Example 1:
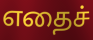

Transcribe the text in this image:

எதைச்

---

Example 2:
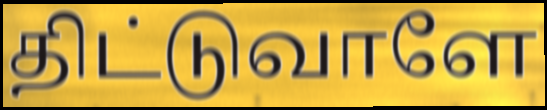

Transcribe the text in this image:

திட்டுவாளே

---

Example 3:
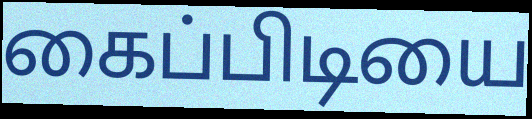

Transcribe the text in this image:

கைப்பிடியை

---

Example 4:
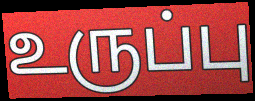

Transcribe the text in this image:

உருப்பு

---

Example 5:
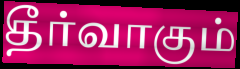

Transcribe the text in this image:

தீர்வாகும்